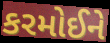
કરમોઈને